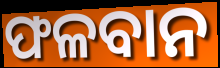
ଫଳବାନ